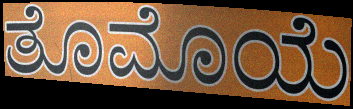
ತೊಮೊಯೆ